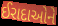
ઈરાદાઓને